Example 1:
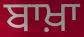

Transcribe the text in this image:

ਬਾਖ਼ਾ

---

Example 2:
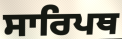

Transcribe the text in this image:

ਸਾਰਿਪਥ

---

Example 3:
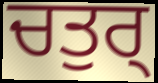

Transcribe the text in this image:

ਚਤੁਰ੍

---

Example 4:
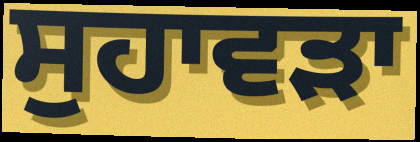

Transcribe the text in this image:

ਸੁਹਾਵੜਾ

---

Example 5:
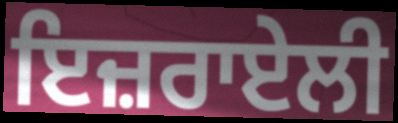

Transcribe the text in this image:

ਇਜ਼ਰਾਏਲੀ